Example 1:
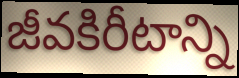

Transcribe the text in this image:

జీవకిరీటాన్ని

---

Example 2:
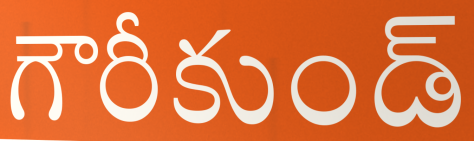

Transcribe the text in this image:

గౌరీకుండ్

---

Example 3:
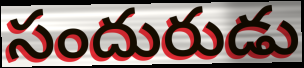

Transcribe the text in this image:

సందురుడు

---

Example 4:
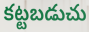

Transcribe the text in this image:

కట్టబడుచు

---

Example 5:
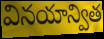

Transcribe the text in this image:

వినయాన్విత